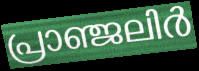
പ്രാഞ്ജലിർ